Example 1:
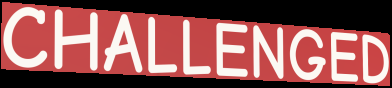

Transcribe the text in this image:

CHALLENGED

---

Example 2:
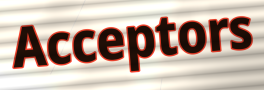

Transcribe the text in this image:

Acceptors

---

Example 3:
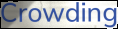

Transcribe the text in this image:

Crowding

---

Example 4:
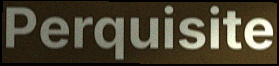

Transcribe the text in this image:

Perquisite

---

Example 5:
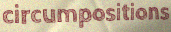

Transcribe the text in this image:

circumpositions